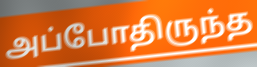
அப்போதிருந்த